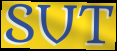
SUT